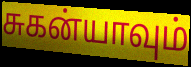
சுகன்யாவும்